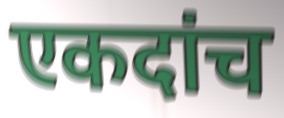
एकदांच